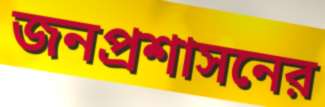
জনপ্রশাসনের